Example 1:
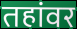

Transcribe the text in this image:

तहांवर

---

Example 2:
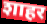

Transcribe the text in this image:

शाहर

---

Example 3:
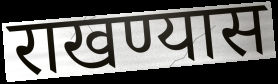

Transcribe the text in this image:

राखण्यास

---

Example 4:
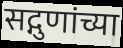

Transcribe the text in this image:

सद्गुणांच्या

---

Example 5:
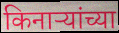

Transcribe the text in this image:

किनाऱ्यांच्या